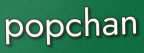
popchan